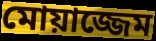
মোয়াজ্জেম